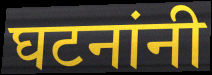
घटनांनी